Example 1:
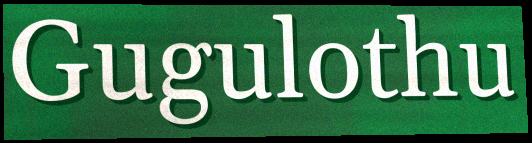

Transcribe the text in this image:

Gugulothu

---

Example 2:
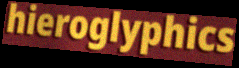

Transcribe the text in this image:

hieroglyphics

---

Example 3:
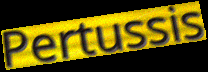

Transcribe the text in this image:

Pertussis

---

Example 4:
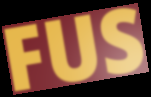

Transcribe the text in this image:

FUS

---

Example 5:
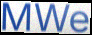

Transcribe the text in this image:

MWe